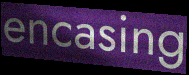
encasing